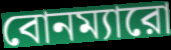
বোনম্যারো